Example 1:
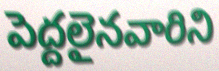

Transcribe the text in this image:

పెద్దలైనవారిని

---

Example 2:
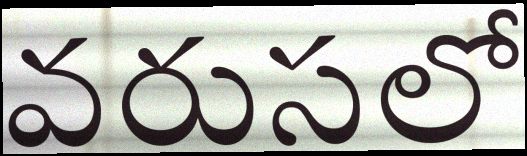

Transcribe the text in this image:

వరుసలో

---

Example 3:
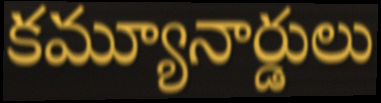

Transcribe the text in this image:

కమ్యూనార్డులు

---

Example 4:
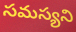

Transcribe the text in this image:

సమస్యని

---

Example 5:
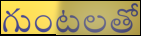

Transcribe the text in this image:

గుంటలతో